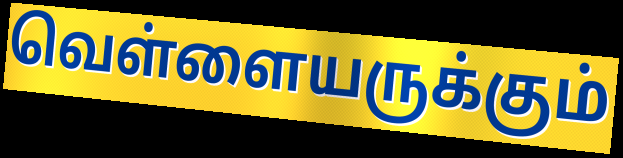
வெள்ளையருக்கும்